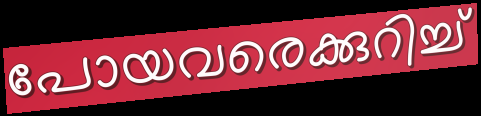
പോയവരെക്കുറിച്ച്